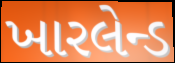
ખારલેન્ડ